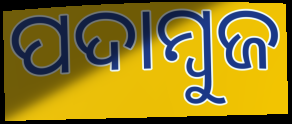
ପଦାମ୍ବୁଜ